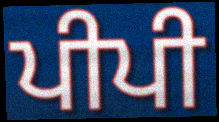
ਪੀਪੀ